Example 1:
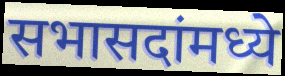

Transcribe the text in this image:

सभासदांमध्ये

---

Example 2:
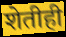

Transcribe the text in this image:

शेतीही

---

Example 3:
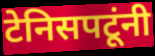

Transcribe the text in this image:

टेनिसपटूंनी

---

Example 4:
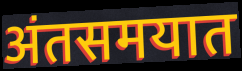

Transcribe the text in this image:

अंतसमयात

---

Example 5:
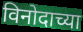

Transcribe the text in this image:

विनोदाच्या